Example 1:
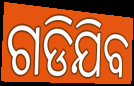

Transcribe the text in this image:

ଗଡିଯିବ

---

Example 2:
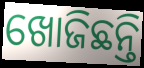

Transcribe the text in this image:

ଖୋଜିଛନ୍ତି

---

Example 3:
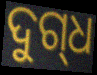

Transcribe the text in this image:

ଦୁଗ୍‌ଧ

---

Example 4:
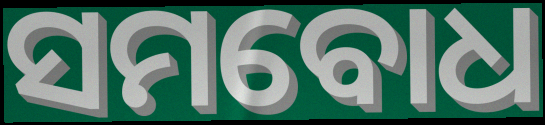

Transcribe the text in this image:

ସମବୋଧ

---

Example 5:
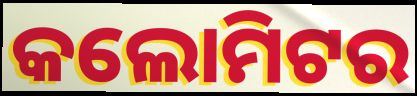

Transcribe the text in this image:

କଲୋମିଟର